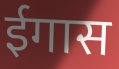
ईगास